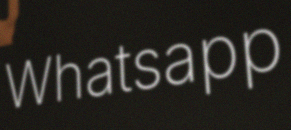
Whatsapp